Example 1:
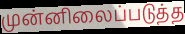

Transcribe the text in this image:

முன்னிலைப்படுத்த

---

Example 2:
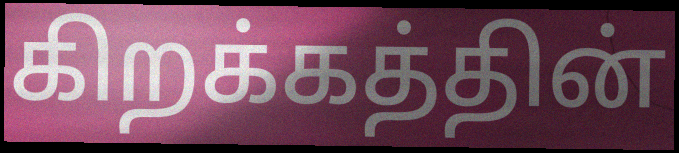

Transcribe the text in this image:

கிறக்கத்தின்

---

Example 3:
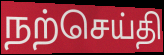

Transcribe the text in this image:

நற்செய்தி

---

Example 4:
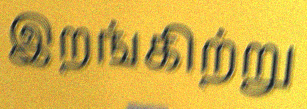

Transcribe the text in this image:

இறங்கிற்று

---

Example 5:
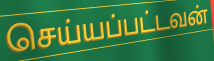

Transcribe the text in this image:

செய்யப்பட்டவன்